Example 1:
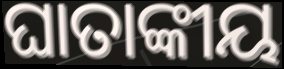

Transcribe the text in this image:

ଘାତାଙ୍କୀୟ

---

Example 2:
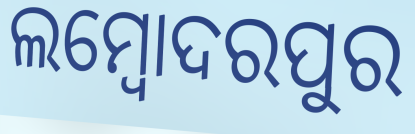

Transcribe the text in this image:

ଲମ୍ବୋଦରପୁର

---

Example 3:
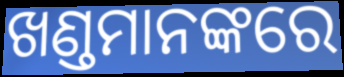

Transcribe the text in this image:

ଖଣ୍ଡମାନଙ୍କରେ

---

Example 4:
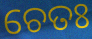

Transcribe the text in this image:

ଚେତଃ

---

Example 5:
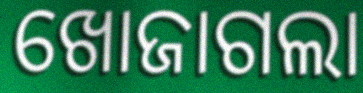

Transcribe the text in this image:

ଖୋଜାଗଲା